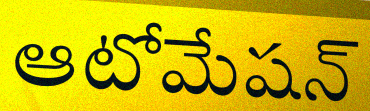
ఆటోమేషన్